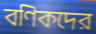
বণিকদের